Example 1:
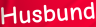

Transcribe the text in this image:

Husbund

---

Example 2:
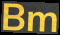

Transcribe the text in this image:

Bm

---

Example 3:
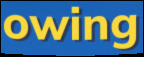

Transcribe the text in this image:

owing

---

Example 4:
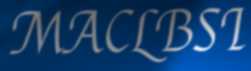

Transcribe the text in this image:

MACLBSI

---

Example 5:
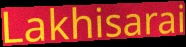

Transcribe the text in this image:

Lakhisarai